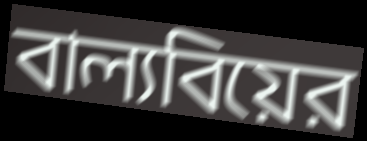
বাল্যবিয়ের